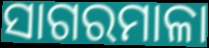
ସାଗରମାଳା